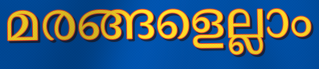
മരങ്ങളെല്ലാം